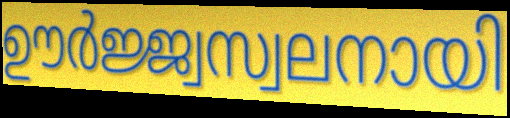
ഊർജ്ജ്വസ്വലനായി